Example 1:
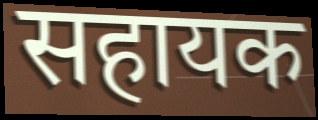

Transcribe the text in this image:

सहायक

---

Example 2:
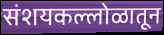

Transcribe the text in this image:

संशयकल्लोळातून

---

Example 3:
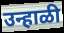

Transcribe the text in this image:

उन्हाळी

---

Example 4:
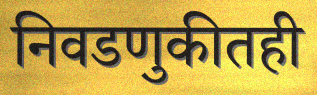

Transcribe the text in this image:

निवडणुकीतही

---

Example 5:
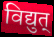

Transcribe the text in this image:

विद्युत्